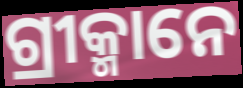
ଗ୍ରୀକ୍ମାନେ